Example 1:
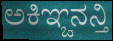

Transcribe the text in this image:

ಅಕಿಞ್ಚನನ್ತಿ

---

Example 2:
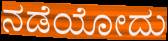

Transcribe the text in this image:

ನಡೆಯೋದು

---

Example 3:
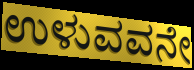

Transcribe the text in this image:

ಉಳುವವನೇ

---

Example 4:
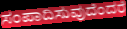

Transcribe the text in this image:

ಸಂಪಾದಿಸುವುದೆಂದರೆ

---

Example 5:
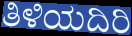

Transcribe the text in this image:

ತಿಳಿಯದಿರಿ